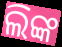
ଲିଙ୍କ